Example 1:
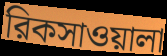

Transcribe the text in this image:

রিকসাওয়ালা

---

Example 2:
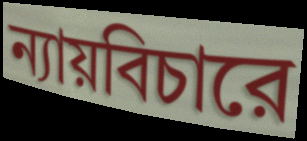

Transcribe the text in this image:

ন্যায়বিচারে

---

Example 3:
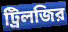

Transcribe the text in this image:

ট্রিলজির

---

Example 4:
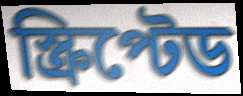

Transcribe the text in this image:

স্ক্রিপ্টেড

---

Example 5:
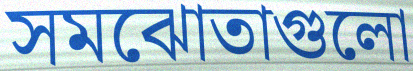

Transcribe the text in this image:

সমঝোতাগুলো